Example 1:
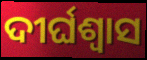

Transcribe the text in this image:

ଦୀର୍ଘଶ୍ଵାସ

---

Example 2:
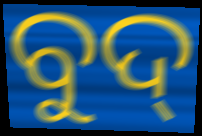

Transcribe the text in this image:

ବୁଦ୍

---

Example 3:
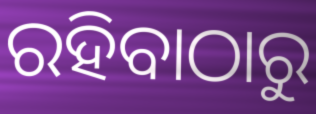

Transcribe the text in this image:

ରହିବାଠାରୁ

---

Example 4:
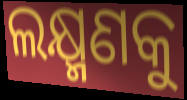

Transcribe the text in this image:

ଲକ୍ଷ୍ମଣକୁ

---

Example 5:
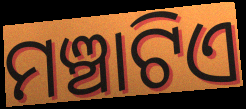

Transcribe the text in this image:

ମଞ୍ଚାଟିଏ